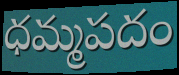
ధమ్మపదం